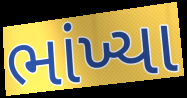
ભાંખ્યા